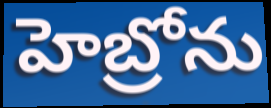
హెబ్రోను